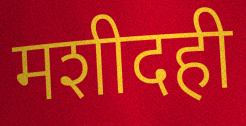
मशीदही